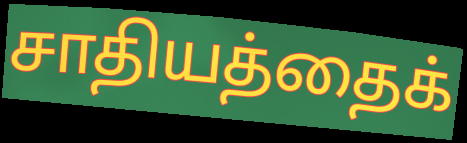
சாதியத்தைக்